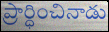
ప్రార్ధించినాడు